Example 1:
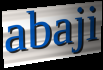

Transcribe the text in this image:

abaji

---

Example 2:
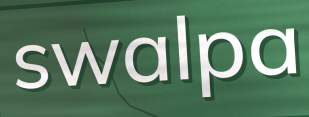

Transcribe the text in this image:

swalpa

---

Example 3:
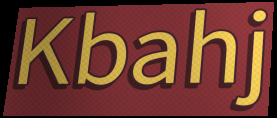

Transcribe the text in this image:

Kbahj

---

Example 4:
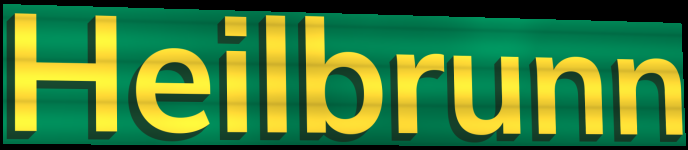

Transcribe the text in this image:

Heilbrunn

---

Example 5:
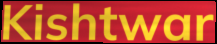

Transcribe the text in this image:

Kishtwar